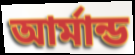
আর্মান্ড